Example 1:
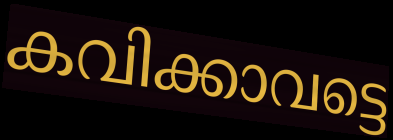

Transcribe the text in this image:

കവിക്കാവട്ടെ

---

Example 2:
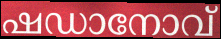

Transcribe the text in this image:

ഷഡാനോവ്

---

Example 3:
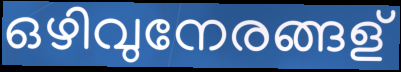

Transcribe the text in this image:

ഒഴിവുനേരങ്ങള്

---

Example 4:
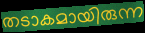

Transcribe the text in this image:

തടാകമായിരുന്ന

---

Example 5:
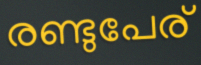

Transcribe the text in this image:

രണ്ടുപേര്